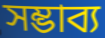
সম্ভাব্য